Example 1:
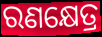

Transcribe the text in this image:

ରଣକ୍ଷେତ୍ର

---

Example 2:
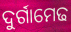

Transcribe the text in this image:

ଦୁର୍ଗାମେଢ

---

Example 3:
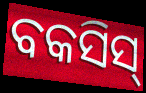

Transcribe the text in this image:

ବକସିସ୍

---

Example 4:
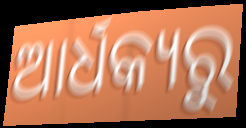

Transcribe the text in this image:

ଆର୍ଧକ୍ୟରୁ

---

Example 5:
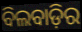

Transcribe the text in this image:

ବିଲବାଡ଼ିର